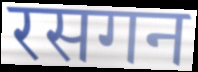
रसगन